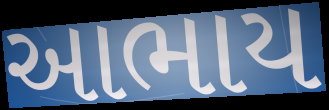
આભાય